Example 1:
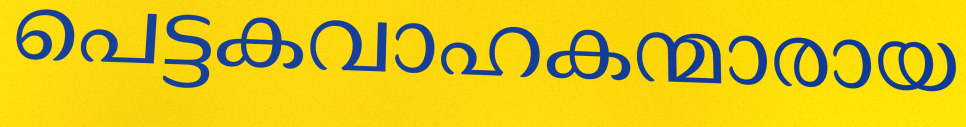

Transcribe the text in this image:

പെട്ടകവാഹകന്മാരായ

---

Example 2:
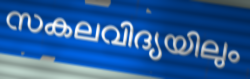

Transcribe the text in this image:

സകലവിദ്യയിലും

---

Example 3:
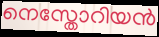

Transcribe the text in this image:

നെസ്തോറിയൻ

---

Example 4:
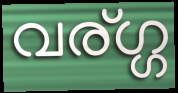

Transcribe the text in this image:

വര്ഗ്ഗ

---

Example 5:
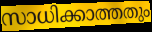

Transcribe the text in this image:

സാധിക്കാത്തതും